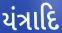
યંત્રાદિ